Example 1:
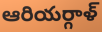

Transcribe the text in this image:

ఆరియర్గాళ్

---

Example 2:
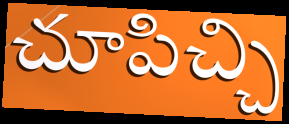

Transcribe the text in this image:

చూపిచ్చి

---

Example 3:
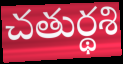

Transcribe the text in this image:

చతుర్థశి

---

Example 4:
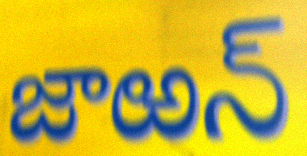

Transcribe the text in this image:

జాఱన్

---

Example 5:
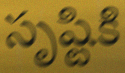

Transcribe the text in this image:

సృష్టికి